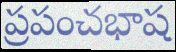
ప్రపంచభాష